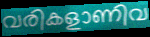
വരികളാണിവ